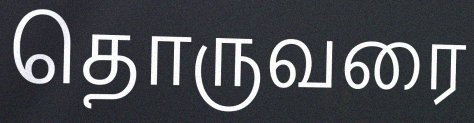
தொருவரை